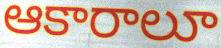
ఆకారాలూ